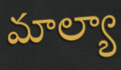
మాల్యా